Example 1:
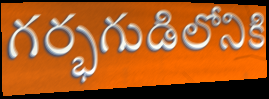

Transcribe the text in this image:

గర్భగుడిలోనికి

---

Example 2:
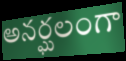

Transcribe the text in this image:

అనర్ఘలంగా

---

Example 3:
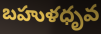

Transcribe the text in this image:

బహుళధృవ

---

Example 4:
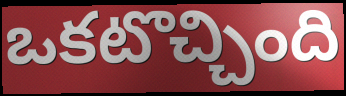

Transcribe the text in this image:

ఒకటొచ్చింది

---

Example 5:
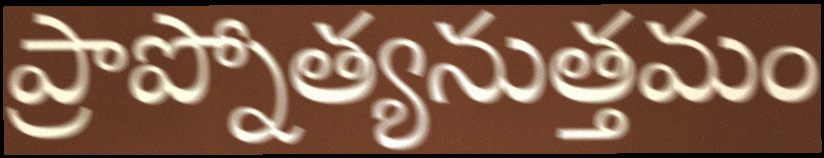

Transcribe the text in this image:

ప్రాప్నోత్యనుత్తమం